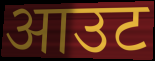
आउट